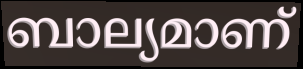
ബാല്യമാണ്